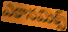
ఎకానమిక్స్